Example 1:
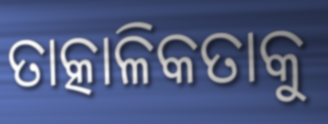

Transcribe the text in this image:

ତାତ୍କାଳିକତାକୁ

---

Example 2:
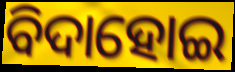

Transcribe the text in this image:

ବିଦାହୋଇ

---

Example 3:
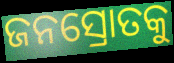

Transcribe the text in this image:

ଜନସ୍ରୋତକୁ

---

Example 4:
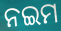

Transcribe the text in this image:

ନଇମ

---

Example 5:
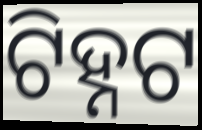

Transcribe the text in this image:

ଟିହ୍ନଟ